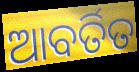
ଆବର୍ତିତ